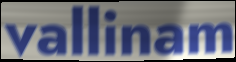
vallinam